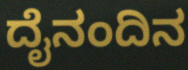
ದೈನಂದಿನ